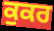
ਕੁਕਰ